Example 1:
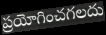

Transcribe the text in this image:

ప్రయోగించగలదు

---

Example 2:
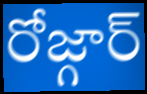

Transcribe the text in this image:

రోజ్గార్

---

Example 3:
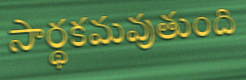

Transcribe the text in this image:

సార్థకమవుతుంది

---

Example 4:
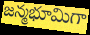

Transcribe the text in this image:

జన్మభూమిగా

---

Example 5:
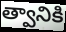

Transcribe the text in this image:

త్వానికి